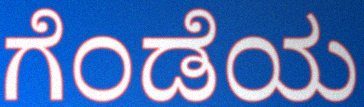
ಗೆಂಡೆಯ